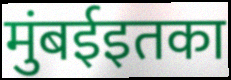
मुंबईइतका